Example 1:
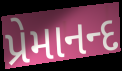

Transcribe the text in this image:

પ્રેમાનન્દ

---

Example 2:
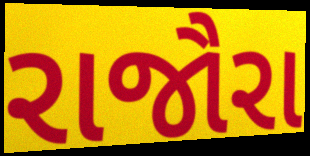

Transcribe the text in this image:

રાજૌરા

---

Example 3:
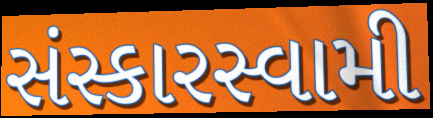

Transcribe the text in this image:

સંસ્કારસ્વામી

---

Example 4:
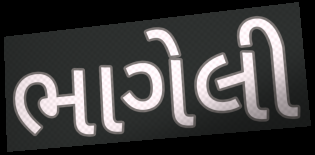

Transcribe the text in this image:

ભાગેલી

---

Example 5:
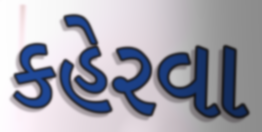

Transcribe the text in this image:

કહેરવા